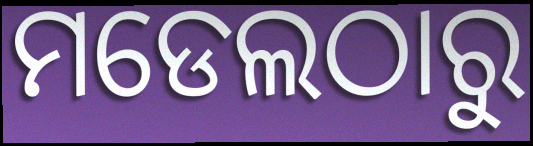
ମଡେଲଠାରୁ